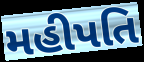
મહીપતિ